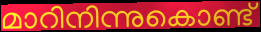
മാറിനിന്നുകൊണ്ട്